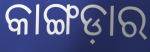
କାଙ୍ଗଡ଼ାର